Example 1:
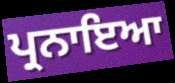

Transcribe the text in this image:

ਪ੍ਰਨਾਇਆ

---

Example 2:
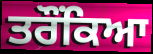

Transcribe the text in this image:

ਤਰੌਂਕਿਆ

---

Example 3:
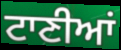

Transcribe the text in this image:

ਟਾਣੀਆਂ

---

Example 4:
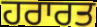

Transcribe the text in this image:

ਹਰਾਰਤ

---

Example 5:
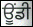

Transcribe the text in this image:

ਊਂਡੀ